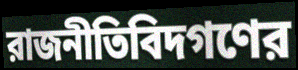
রাজনীতিবিদগণের